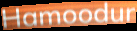
Hamoodur